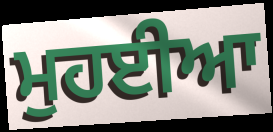
ਮੁਹਈਆ